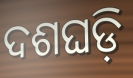
ଦଶଘଡ଼ି